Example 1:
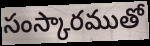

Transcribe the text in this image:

సంస్కారముతో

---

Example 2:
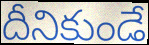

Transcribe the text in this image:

దీనికుండే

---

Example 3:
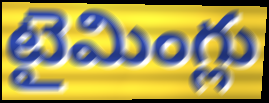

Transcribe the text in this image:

టైమింగ్లు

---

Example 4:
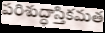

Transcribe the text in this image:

పరిశుద్ధాస్తికమత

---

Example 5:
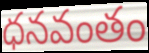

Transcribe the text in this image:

ధనవంతం